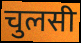
चुलसी